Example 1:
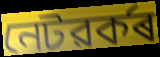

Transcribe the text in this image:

নেটৱৰ্কৰ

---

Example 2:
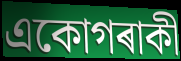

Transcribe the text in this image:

একোগৰাকী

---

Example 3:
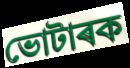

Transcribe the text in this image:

ভোটাৰক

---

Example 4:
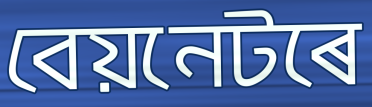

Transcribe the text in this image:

বেয়নেটৰে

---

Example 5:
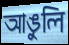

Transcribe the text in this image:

আঙুলি